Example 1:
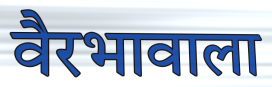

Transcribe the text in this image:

वैरभावाला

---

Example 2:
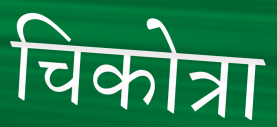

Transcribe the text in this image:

चिकोत्रा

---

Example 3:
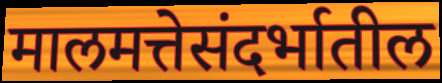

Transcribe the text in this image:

मालमत्तेसंदर्भातील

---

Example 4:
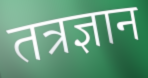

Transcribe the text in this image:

तत्रज्ञान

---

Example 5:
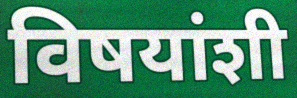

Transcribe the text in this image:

विषयांशी